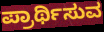
ಪ್ರಾರ್ಥಿಸುವ